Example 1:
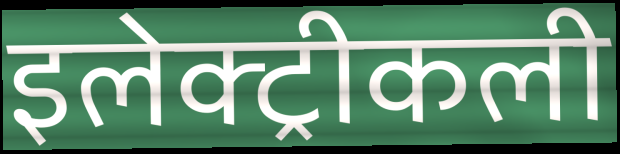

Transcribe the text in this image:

इलेक्ट्रीकली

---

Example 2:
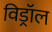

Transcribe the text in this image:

विड्रॉल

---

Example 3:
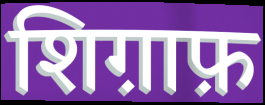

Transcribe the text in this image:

शिग़ाफ़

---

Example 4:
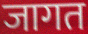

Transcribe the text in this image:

जागत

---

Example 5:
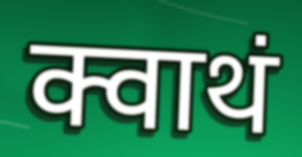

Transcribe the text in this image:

क्वाथं